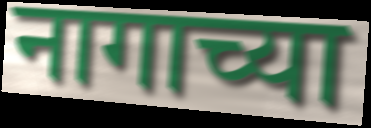
नागाच्या